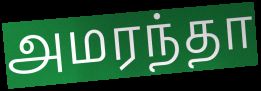
அமரந்தா